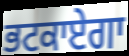
ਭਟਕਾਏਗਾ